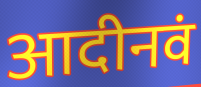
आदीनवं